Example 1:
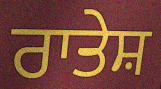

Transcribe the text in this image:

ਰਾਤੇਸ਼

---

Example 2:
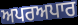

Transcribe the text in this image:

ਅਪਰਅਪਾਰ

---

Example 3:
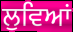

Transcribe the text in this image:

ਲੁਵਿਆਂ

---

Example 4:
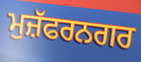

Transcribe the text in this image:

ਮੁਜ਼ੱਫਰਨਗਰ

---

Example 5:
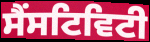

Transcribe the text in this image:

ਸੈਂਸਟਿਵਿਟੀ